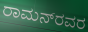
ರಾಮನ್‌ರವರ